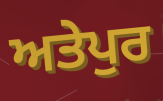
ਅਤੇਪੁਰ